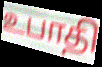
உபாதி